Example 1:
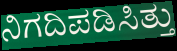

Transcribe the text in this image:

ನಿಗದಿಪಡಿಸಿತ್ತು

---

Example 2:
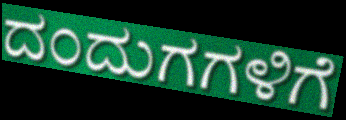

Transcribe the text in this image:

ದಂದುಗಗಳಿಗೆ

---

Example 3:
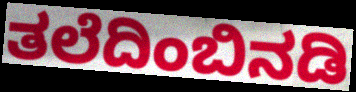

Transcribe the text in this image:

ತಲೆದಿಂಬಿನಡಿ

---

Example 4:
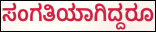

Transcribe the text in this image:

ಸಂಗತಿಯಾಗಿದ್ದರೂ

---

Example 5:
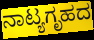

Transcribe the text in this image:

ನಾಟ್ಯಗೃಹದ